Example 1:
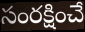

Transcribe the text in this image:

సంరక్షించే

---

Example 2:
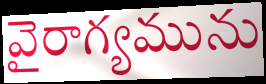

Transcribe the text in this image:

వైరాగ్యమును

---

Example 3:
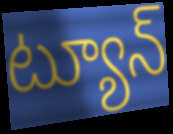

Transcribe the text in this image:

ట్యూన్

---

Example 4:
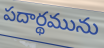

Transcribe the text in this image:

పదార్థమును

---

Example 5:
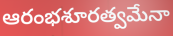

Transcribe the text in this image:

ఆరంభశూరత్వమేనా